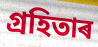
গ্ৰহিতাৰ